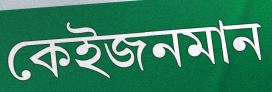
কেইজনমান